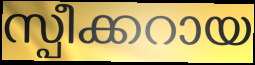
സ്പീക്കറായ